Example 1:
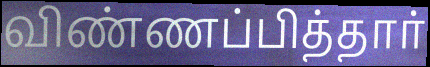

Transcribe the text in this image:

விண்ணப்பித்தார்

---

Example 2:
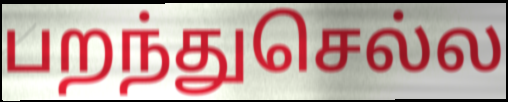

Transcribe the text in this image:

பறந்துசெல்ல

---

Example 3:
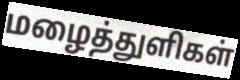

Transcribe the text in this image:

மழைத்துளிகள்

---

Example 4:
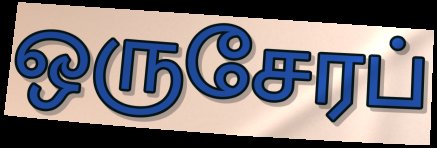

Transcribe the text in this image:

ஒருசேரப்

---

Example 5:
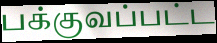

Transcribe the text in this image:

பக்குவப்பட்ட